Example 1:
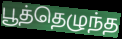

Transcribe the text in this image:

பூத்தெழுந்த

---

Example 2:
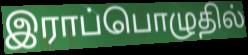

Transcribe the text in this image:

இராப்பொழுதில்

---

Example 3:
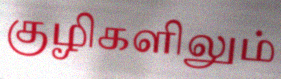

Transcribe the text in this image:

குழிகளிலும்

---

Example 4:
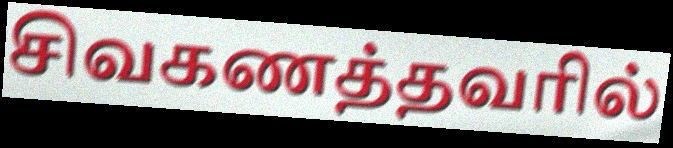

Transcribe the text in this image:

சிவகணத்தவரில்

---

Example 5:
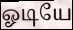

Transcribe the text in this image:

ஓடியே